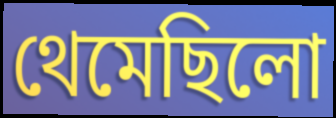
থেমেছিলো